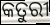
କତୁରୀ